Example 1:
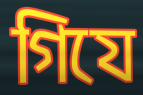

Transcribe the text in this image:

গিযে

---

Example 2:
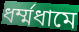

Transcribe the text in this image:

ধর্ম্মধামে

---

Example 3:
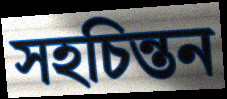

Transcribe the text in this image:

সহচিন্তন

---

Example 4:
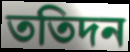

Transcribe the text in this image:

ততিদন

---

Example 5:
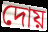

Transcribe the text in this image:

দোয়